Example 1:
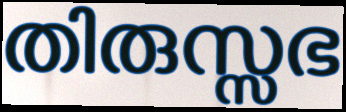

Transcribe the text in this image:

തിരുസ്സഭ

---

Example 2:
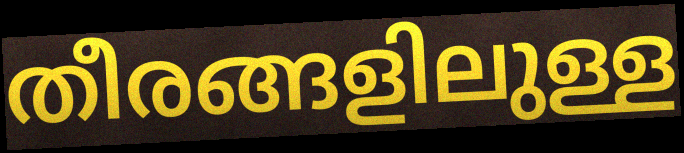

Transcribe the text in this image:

തീരങ്ങളിലുള്ള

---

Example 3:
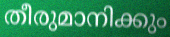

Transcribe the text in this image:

തീരുമാനിക്കും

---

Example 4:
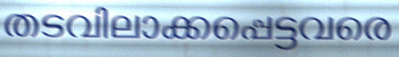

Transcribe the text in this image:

തടവിലാക്കപ്പെട്ടവരെ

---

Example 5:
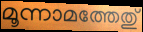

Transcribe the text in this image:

മൂന്നാമത്തേതു്